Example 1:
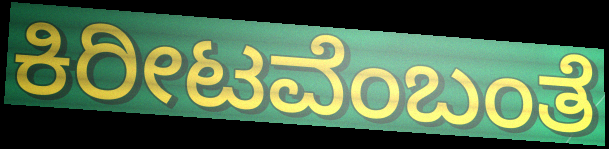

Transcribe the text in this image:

ಕಿರೀಟವೆಂಬಂತೆ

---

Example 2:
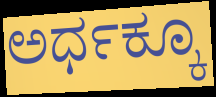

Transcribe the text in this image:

ಅರ್ಧಕ್ಕೂ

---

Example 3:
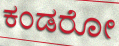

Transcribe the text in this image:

ಕಂಡರೋ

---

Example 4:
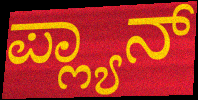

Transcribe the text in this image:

ಪ್ಲ್ಯಾನ್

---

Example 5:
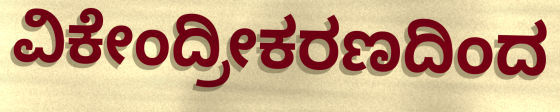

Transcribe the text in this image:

ವಿಕೇಂದ್ರೀಕರಣದಿಂದ